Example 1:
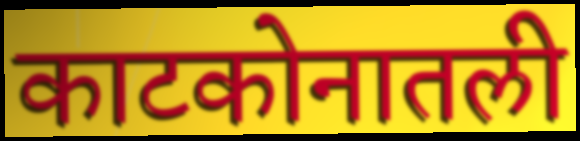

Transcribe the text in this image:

काटकोनातली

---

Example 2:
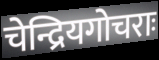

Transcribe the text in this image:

चेन्द्रियगोचराः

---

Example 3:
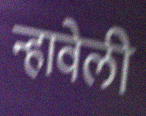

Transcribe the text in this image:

न्हावेली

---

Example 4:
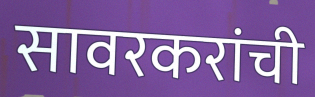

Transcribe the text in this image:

सावरकरांची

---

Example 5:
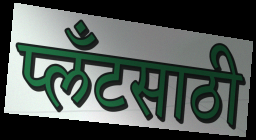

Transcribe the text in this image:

प्लँटसाठी